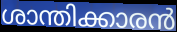
ശാന്തിക്കാരൻ